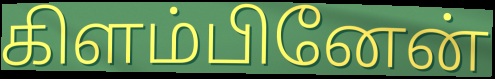
கிளம்பினேன்